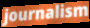
journalism